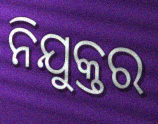
ନିଯୁକ୍ତର